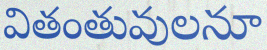
వితంతువులనూ